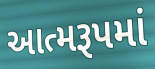
આત્મરૂપમાં